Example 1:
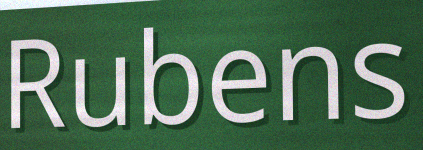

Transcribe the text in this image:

Rubens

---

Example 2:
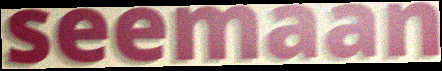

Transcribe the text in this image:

seemaan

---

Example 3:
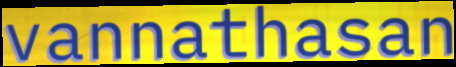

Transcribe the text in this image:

vannathasan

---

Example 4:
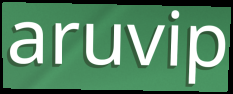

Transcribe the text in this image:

aruvip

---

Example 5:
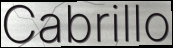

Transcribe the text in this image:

Cabrillo